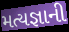
મત્યજ્ઞાની